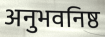
अनुभवनिष्ठ